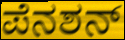
ಪೆನಶನ್